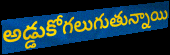
అడ్డుకోగలుగుతున్నాయి